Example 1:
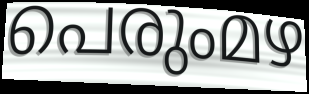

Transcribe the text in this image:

പെരുംമഴ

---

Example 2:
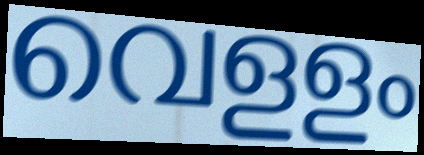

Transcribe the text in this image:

വെളളം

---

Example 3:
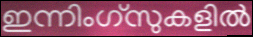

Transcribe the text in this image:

ഇന്നിംഗ്സുകളിൽ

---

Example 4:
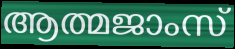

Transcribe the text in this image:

ആത്മജാംസ്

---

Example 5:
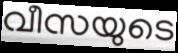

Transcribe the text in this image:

വീസയുടെ